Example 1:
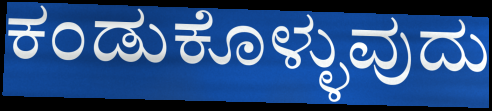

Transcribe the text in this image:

ಕಂಡುಕೊಳ್ಳುವುದು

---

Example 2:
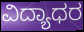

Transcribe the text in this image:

ವಿದ್ಯಾಧರ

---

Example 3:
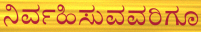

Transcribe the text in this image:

ನಿರ್ವಹಿಸುವವರಿಗೂ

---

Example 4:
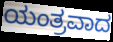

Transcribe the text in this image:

ಯಂತ್ರವಾದ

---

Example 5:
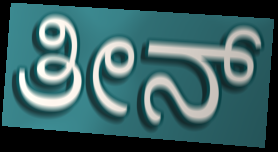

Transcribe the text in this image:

ತೀನ್